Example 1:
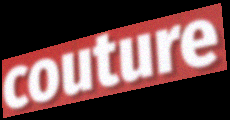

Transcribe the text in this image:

couture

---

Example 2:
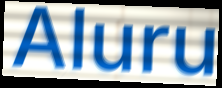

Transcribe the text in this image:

Aluru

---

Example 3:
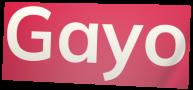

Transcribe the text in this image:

Gayo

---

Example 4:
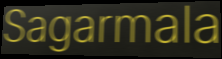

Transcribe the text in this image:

Sagarmala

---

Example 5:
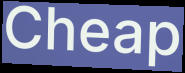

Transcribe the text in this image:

Cheap